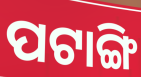
ପଟାଙ୍ଗି